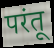
परंतू